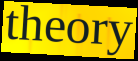
theory